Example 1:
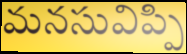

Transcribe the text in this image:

మనసువిప్పి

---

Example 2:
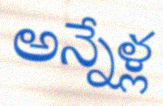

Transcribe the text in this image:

అన్నేళ్ల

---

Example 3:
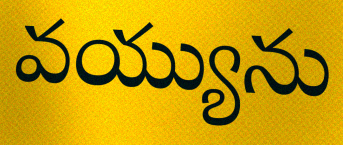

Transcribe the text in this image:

వయ్యును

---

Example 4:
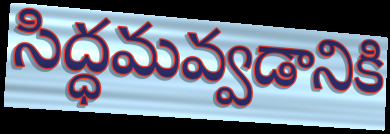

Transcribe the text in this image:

సిద్ధమవ్వడానికి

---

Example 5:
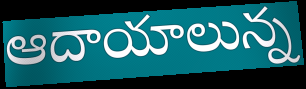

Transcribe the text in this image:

ఆదాయాలున్న